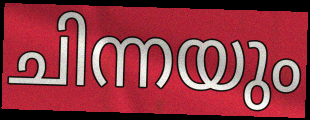
ചിന്നയും